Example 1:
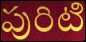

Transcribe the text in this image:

పురిటి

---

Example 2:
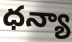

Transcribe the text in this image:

ధన్యా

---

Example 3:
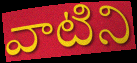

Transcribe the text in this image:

వాటిని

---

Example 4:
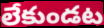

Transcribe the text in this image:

లేకుండట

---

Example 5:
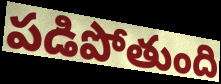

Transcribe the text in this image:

పడిపోతుంది